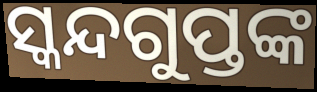
ସ୍କନ୍ଦଗୁପ୍ତଙ୍କ